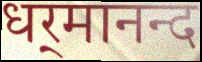
धर्मानन्द